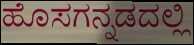
ಹೊಸಗನ್ನಡದಲ್ಲಿ